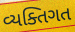
વ્યક્તિગત